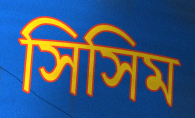
সিসিম